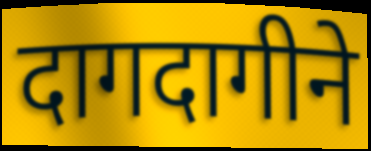
दागदागीने